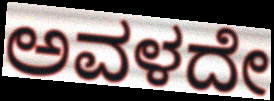
ಅವಳದೇ